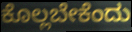
ಕೊಲ್ಲಬೇಕೆಂದು